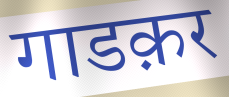
गाडक़र